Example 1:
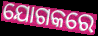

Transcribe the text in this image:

ଯୋଗକରେ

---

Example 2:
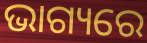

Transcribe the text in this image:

ଭାଗ୍ୟରେ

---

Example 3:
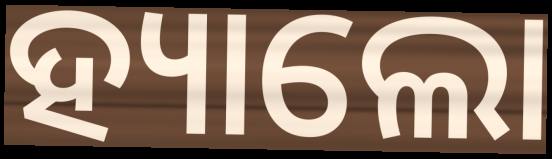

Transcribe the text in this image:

ହ୍ୟାଲୋ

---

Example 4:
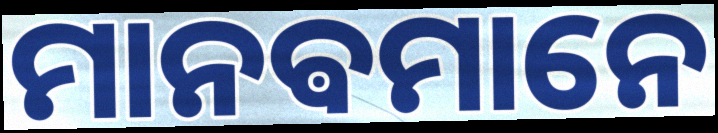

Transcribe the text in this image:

ମାନଵମାନେ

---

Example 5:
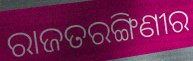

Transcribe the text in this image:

ରାଜତରଙ୍ଗିଣୀର